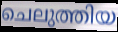
ചെലുത്തിയ